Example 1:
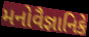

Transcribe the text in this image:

મનોવૈજ્ઞાનિકે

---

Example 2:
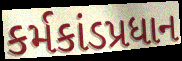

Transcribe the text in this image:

કર્મકાંડપ્રધાન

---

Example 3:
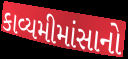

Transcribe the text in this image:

કાવ્યમીમાંસાનો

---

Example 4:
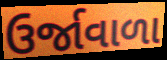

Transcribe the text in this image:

ઉર્જાવાળા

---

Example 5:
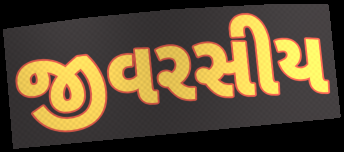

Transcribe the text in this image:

જીવરસીય